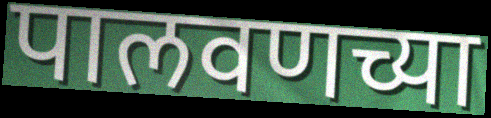
पालवणच्या